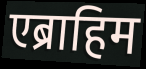
एब्राहिम